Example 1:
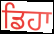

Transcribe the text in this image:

ਡਿਹਾ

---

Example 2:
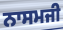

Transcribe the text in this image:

ਨਾਸਮਜੀ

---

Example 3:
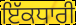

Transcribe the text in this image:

ਇੱਕਧਾਰੀ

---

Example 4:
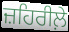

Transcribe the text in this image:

ਜ਼ਹਿਰੀਲ਼ੇ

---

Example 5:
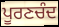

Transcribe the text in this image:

ਪੂਰਣਚੰਦ